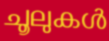
ചൂലുകൾ